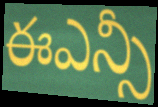
ఈఎన్సీ